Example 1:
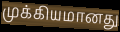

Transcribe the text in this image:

முக்கியமானது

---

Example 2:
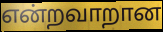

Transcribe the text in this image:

என்றவாறான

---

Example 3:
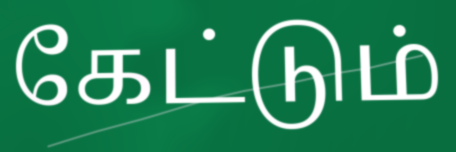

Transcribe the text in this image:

கேட்டும்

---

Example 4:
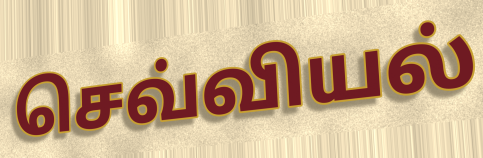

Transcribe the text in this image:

செவ்வியல்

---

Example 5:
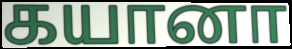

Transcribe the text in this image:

கயானா